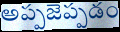
అప్పజెప్పడం